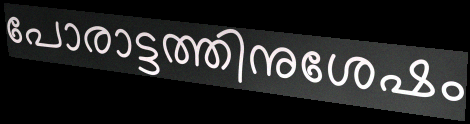
പോരാട്ടത്തിനുശേഷം